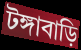
টঙ্গাবাড়ি